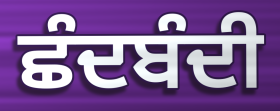
ਛੰਦਬੰਦੀ